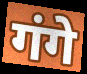
गंगे